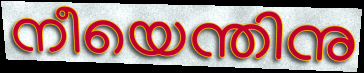
നീയെന്തിനു